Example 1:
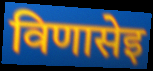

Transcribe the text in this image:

विणासेइ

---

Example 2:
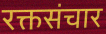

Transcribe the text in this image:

रक्तसंचार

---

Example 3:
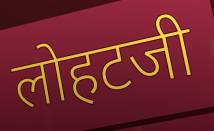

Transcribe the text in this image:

लोहटजी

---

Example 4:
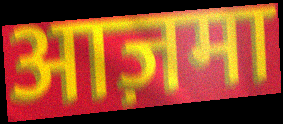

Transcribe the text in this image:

आज़मा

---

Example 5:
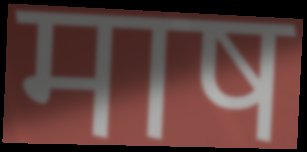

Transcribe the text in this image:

माष